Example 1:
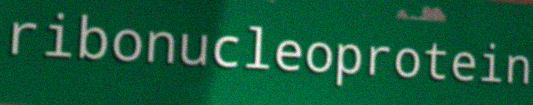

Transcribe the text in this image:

ribonucleoprotein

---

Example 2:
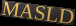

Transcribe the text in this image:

MASLD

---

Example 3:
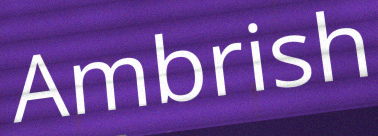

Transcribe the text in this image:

Ambrish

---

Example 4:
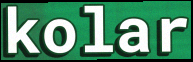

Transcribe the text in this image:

kolar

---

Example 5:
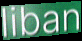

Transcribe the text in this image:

liban